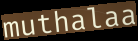
muthalaa